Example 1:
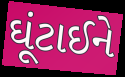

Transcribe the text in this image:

ઘૂંટાઈને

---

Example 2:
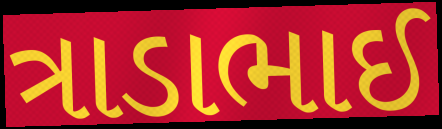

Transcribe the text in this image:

ત્રાડાભાઈ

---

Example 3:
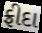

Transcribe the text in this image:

ફ્રીદા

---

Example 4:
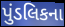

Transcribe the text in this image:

પુંડલિકના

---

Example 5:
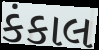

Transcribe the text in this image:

કંકાલ